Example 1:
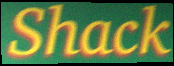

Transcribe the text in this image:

Shack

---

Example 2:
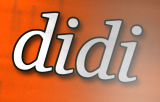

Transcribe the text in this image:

didi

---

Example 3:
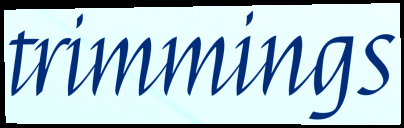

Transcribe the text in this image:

trimmings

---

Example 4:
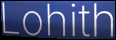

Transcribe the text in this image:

Lohith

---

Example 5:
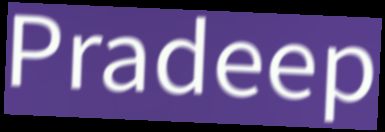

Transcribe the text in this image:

Pradeep